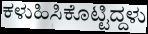
ಕಳುಹಿಸಿಕೊಟ್ಟಿದ್ದಳು